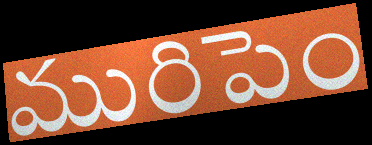
మురిపెం